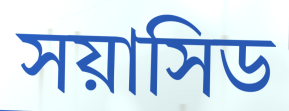
সয়াসিড